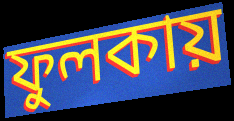
ফুলকায়